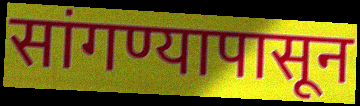
सांगण्यापासून